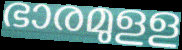
ഭാരമുളള